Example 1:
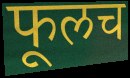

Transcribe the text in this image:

फूलच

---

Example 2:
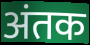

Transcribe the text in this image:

अंतक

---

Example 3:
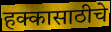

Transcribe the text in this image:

हक्कासाठीचे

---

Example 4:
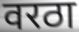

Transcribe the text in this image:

वरठा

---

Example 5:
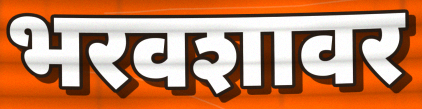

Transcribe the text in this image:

भरवशावर